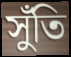
সুঁতি